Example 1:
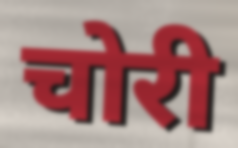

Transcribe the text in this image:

चोरी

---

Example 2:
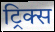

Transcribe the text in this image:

ट्रिक्‍स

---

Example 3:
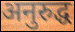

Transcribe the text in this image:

अनुरुद्ध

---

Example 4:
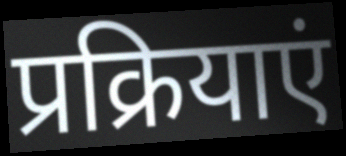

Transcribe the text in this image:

प्रक्रियाएं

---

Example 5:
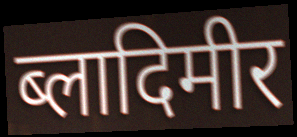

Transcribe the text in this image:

ब्लादिमीर